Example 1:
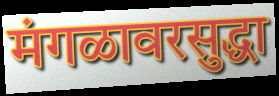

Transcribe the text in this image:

मंगळावरसुद्धा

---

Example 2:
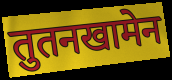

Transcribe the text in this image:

तुतनखामेन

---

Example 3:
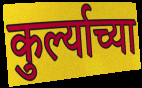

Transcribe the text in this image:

कुर्ल्याच्या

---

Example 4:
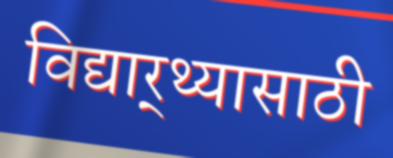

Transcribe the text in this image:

विद्यार्थ्यासाठी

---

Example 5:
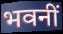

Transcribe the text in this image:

भवनीं